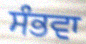
ਸੰਭਵਾ